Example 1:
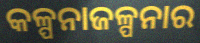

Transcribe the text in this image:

କଳ୍ପନାଜଳ୍ପନାର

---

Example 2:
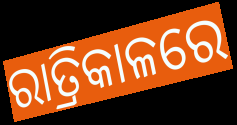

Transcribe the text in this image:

ରାତ୍ରିକାଳରେ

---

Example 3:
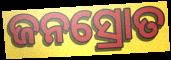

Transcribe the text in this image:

ଜନସ୍ରୋତ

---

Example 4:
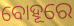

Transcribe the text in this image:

ବୋହୂରେ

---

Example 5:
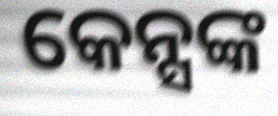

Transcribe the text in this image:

କେନ୍ସଙ୍କ